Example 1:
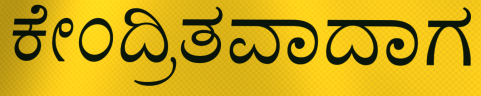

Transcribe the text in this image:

ಕೇಂದ್ರಿತವಾದಾಗ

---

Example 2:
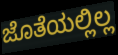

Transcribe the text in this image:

ಜೊತೆಯಲ್ಲಿಲ್ಲ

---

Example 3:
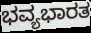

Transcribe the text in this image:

ಭವ್ಯಭಾರತ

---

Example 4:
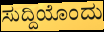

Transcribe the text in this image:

ಸುದ್ದಿಯೊಂದು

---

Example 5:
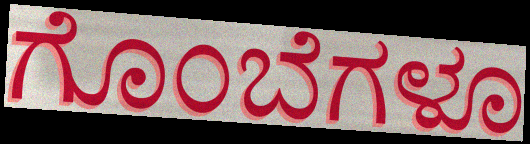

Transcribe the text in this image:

ಗೊಂಬೆಗಳೂ